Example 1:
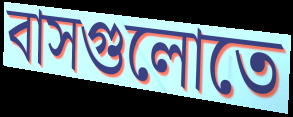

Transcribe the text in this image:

বাসগুলোতে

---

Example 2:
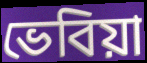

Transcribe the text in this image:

ভেবিয়া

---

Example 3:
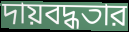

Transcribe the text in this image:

দায়বদ্ধতার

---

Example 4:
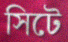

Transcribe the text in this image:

সিটে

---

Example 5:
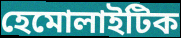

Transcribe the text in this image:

হেমোলাইটিক